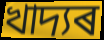
খাদ্যৰ